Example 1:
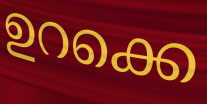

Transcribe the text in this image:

ഉറക്കെ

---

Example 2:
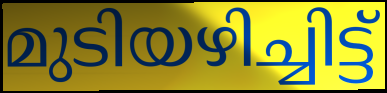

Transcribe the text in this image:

മുടിയഴിച്ചിട്ട്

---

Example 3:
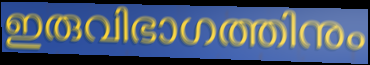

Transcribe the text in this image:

ഇരുവിഭാഗത്തിനും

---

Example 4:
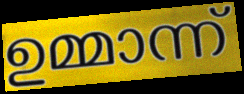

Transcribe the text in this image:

ഉമ്മാന്ന്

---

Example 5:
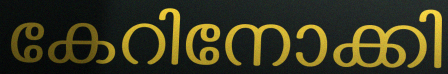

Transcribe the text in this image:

കേറിനോക്കി